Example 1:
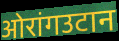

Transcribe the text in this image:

ओरांगउटान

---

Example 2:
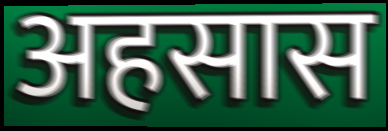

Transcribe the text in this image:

अहसास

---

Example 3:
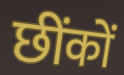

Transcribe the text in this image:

छींकों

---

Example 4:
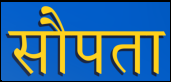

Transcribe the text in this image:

सौपता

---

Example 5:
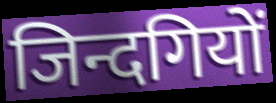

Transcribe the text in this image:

जिन्दगियों